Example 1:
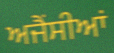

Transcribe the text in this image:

ਅਜੈਂਸੀਆਂ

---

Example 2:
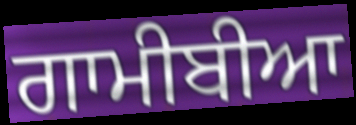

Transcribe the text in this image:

ਗਾਮੀਬੀਆ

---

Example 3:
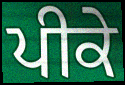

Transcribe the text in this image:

ਪੀਕੇ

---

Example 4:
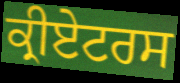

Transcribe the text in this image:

ਕ੍ਰੀਏਟਰਸ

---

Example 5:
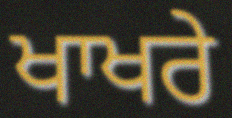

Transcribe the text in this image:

ਖਾਖਰੇ